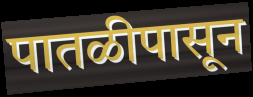
पातळीपासून